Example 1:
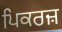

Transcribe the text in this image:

ਪਿਕਰਜ਼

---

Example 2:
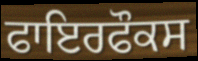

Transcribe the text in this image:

ਫਾਇਰਫੌਕਸ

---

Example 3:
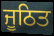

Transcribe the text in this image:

ਜੂਠਿਤ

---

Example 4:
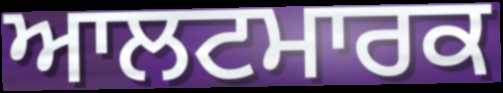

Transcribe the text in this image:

ਆਲਟਮਾਰਕ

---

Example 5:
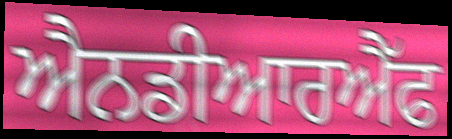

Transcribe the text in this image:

ਐਨਡੀਆਰਐੱਫ